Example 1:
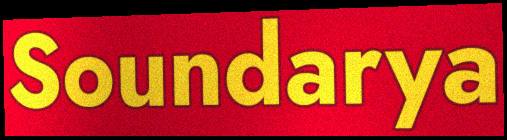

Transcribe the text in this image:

Soundarya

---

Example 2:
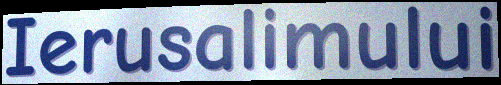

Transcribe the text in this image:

Ierusalimului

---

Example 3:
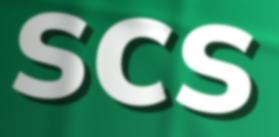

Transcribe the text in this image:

scs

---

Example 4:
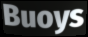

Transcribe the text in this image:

Buoys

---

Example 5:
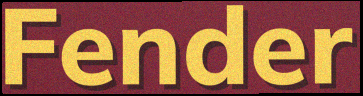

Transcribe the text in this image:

Fender